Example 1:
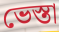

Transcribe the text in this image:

ভেস্তা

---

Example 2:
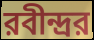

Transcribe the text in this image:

রবীন্দ্রর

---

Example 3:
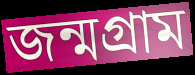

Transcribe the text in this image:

জন্মগ্রাম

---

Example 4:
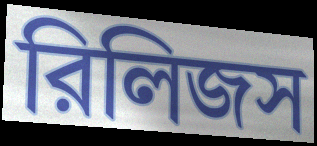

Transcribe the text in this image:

রিলিজস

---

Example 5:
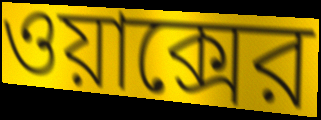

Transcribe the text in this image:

ওয়াক্সের